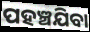
ପହଞ୍ଚଯିବା